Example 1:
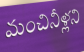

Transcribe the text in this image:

మంచినీళ్లని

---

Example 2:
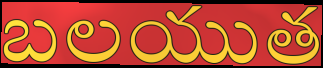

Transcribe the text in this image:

బలయుత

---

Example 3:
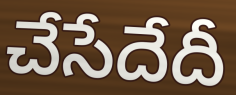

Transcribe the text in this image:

చేసేదేదీ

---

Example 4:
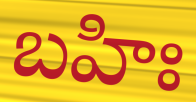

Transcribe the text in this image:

బహిః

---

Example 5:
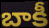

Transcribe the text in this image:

బాకీ